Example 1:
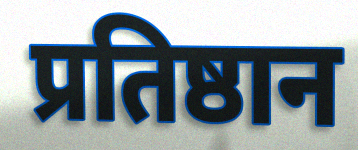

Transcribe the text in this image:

प्रतिष्ठान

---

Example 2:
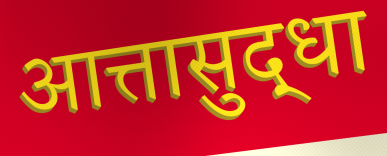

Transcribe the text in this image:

आत्तासुद्धा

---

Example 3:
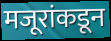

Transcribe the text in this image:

मजूरांकडून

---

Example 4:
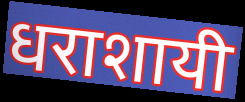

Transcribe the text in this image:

धराशायी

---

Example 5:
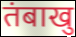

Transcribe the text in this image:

तंबाखु